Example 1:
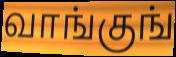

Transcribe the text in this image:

வாங்குங்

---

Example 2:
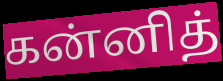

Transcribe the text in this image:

கன்னித்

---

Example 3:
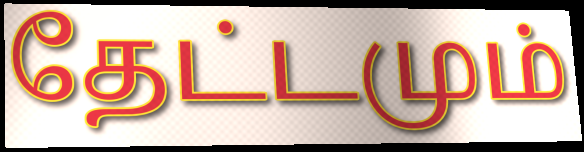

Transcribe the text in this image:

தேட்டமும்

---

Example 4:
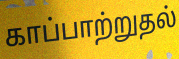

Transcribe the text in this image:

காப்பாற்றுதல்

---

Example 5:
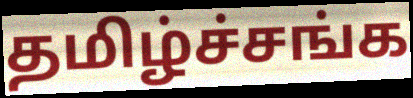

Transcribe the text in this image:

தமிழ்ச்சங்க